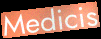
Medicis